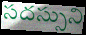
సదస్సుని